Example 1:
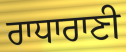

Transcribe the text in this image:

ਰਾਧਾਰਾਣੀ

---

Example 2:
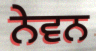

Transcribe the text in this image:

ਨੇਵਨ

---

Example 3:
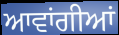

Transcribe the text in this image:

ਆਵਾਂਗੀਆਂ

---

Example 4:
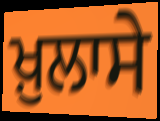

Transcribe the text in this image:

ਖ਼ੁਲਾਸੇ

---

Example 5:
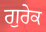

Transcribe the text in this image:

ਗੁਰੇਕ